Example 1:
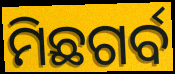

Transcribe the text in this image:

ମିଛଗର୍ବ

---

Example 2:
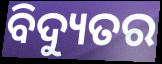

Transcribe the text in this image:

ବିଦ୍ୟୁତର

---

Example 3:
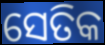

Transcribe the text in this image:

ସେତିକ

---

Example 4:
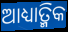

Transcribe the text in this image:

ଆଧ୍ୟାତ୍ମିକ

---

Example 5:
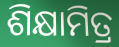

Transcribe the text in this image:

ଶିକ୍ଷାମିତ୍ର